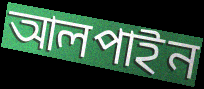
আলপাইন